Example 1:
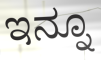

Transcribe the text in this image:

ಇನ್ನೂ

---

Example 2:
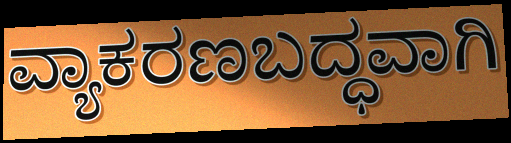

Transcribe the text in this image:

ವ್ಯಾಕರಣಬದ್ಧವಾಗಿ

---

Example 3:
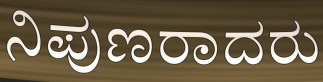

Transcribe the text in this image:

ನಿಪುಣರಾದರು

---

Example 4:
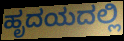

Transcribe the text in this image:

ಹೃದಯದಲ್ಲಿ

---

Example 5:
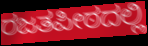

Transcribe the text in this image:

ರಜತಪೀಠದಲ್ಲಿ